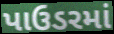
પાઉડરમાં